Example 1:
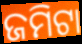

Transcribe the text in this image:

ଜମିଟା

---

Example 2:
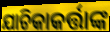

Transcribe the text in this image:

ଯାଚିକାକର୍ତ୍ତାଙ୍କ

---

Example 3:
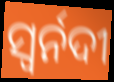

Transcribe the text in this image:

ସ୍ୱର୍ନଦୀ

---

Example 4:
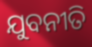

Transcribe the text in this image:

ଯୁବନୀତି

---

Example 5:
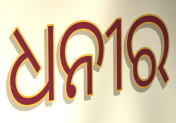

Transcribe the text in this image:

ଧନୀର